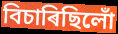
বিচাৰিছিলোঁ